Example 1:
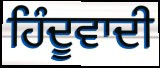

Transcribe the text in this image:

ਹਿੰਦੂਵਾਦੀ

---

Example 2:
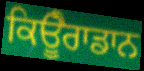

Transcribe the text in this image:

ਕਿਊੈਰਾਡਾਨ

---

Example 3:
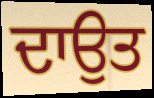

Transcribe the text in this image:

ਦਾਉਤ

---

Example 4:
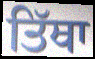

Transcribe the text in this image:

ਤਿੱਥਾ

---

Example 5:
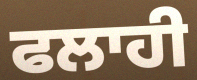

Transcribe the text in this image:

ਫਲਾਹੀ